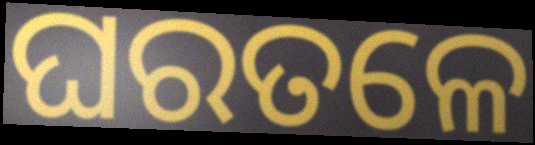
ଘରତଳେ